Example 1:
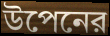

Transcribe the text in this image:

উপেনের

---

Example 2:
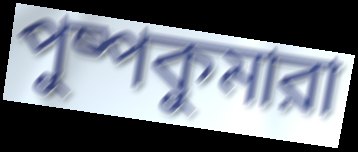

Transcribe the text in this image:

পুষ্পকুমারা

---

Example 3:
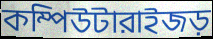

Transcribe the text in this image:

কম্পিউটারাইজড়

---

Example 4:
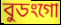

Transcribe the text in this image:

বুডংগো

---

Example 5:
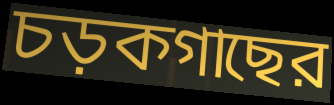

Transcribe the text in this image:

চড়কগাছের